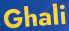
Ghali